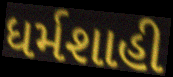
ધર્મશાહી